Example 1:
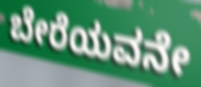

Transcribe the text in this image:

ಬೇರೆಯವನೇ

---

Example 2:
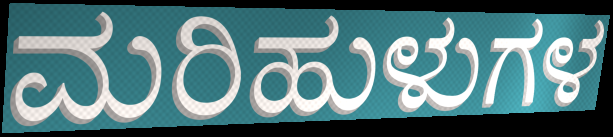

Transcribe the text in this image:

ಮರಿಹುಳುಗಳ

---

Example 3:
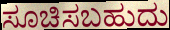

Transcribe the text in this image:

ಸೂಚಿಸಬಹುದು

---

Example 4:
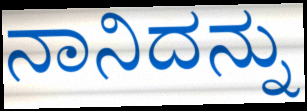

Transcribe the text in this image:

ನಾನಿದನ್ನು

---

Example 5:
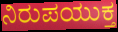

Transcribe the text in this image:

ನಿರುಪಯುಕ್ತ